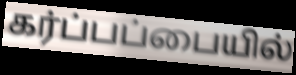
கர்ப்பப்பையில்